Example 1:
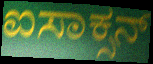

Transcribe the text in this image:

ಐಸಾಕ್ಸನ್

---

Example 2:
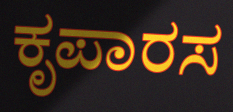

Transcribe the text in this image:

ಕೃಪಾರಸ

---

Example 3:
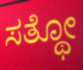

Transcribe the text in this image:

ಸತ್ಥೋ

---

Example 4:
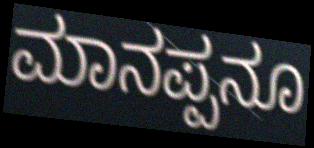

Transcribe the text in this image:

ಮಾನಪ್ಪನೂ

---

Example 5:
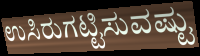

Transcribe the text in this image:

ಉಸಿರುಗಟ್ಟಿಸುವಷ್ಟು